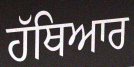
ਹੱਥਿਆਰ